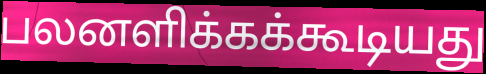
பலனளிக்கக்கூடியது